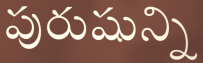
పురుషున్ని